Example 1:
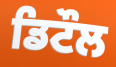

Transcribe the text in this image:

ਡਿਟੌਲ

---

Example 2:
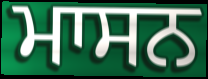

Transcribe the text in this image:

ਮਾਸਨ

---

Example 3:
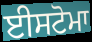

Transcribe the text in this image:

ਈਸਟੋਮਾ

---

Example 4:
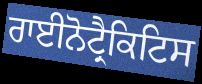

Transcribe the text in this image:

ਰਾਈਨੋਟ੍ਰੈਕਿਟਿਸ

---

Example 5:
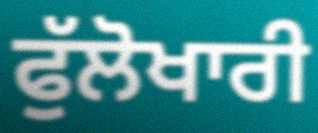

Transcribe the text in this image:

ਫੁੱਲੋਖਾਰੀ